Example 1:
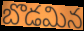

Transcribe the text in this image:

బొడమిన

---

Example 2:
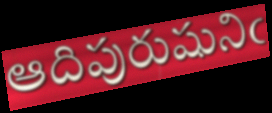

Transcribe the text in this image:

ఆదిపురుషునిఁ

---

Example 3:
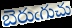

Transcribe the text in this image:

బెరుఁగుచు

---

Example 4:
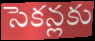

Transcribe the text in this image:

సెకన్లకు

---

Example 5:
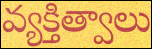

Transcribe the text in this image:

వ్యక్తిత్వాలు